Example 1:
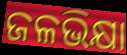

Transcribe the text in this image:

ଜଳଭିକ୍ଷା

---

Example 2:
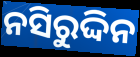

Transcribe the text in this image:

ନସିରୁଦ୍ଦିନ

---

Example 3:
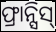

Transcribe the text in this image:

ଫ୍ରାନ୍ସିସ୍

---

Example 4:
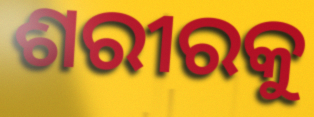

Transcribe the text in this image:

ଶରୀରକୁ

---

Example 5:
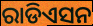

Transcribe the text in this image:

ରାଡିଏସନ